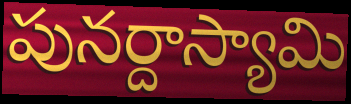
పునర్దాస్యామి